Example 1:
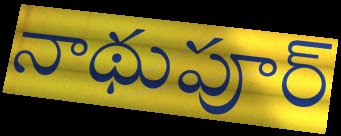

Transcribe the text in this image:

నాథుపూర్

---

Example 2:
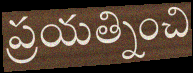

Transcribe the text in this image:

ప్రయత్నించి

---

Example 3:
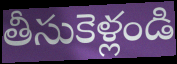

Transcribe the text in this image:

తీసుకెళ్లండి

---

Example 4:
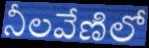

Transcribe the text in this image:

నీలవేణిలో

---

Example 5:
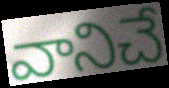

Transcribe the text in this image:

వానిచే